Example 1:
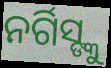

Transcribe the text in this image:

ନର୍ଗିସ୍ଙ୍କୁ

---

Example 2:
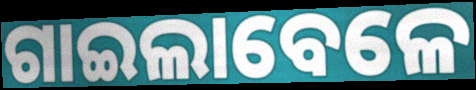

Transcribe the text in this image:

ଗାଇଲାବେଳେ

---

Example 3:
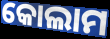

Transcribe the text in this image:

କୋଲାମ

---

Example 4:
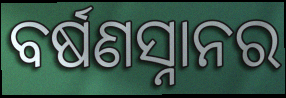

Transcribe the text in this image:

ବର୍ଷଣସ୍ନାନର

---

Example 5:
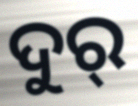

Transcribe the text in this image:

ଦୁର୍